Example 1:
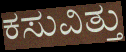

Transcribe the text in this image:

ಕಸುವಿತ್ತು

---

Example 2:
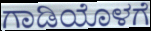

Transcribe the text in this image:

ಗಾಡಿಯೊಳಗೆ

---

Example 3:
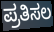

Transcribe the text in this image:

ಪ್ರತಿಸಲ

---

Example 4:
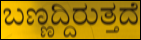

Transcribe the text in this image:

ಬಣ್ಣದ್ದಿರುತ್ತದೆ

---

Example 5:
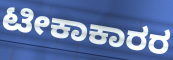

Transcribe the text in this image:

ಟೀಕಾಕಾರರ